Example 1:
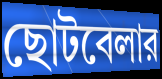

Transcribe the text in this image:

ছোটবেলার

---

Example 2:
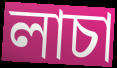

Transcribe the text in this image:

লাচা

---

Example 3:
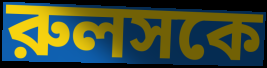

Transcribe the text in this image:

রুলসকে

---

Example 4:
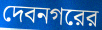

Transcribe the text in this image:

দেবনগরের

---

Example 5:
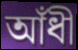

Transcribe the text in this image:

আঁধী